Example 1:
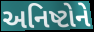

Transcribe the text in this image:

અનિષ્ટોને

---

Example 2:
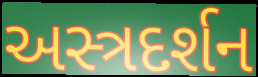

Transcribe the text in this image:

અસ્ત્રદર્શન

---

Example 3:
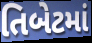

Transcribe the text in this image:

તિબેટમાં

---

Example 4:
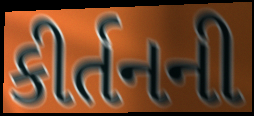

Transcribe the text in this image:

કીર્તનની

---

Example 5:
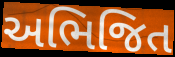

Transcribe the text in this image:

અભિજિત